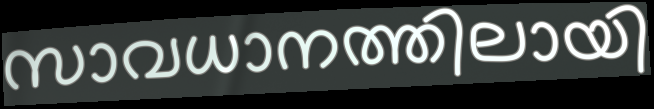
സാവധാനത്തിലായി